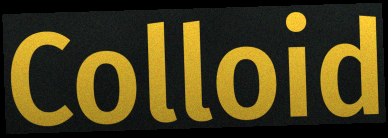
Colloid